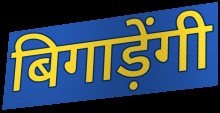
बिगाड़ेंगी